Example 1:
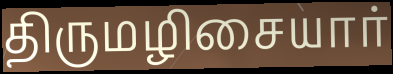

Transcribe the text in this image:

திருமழிசையார்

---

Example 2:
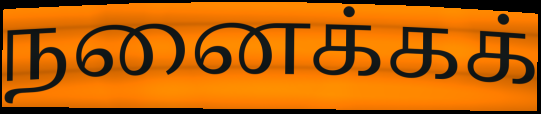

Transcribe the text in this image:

நனைக்கக்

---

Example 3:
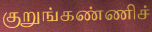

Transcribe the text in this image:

குறுங்கண்ணிச்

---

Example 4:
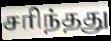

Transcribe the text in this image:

சரிந்தது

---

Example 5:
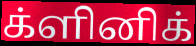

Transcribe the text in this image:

க்ளினிக்